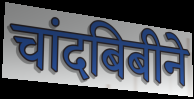
चांदबिबीने